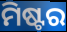
ମିଷ୍ଟର